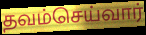
தவம்செய்வார்